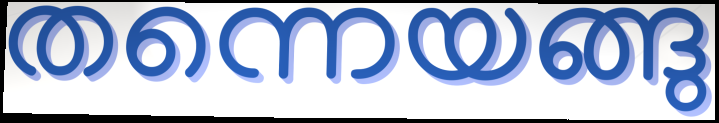
തന്നെയങ്ങു